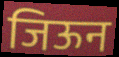
जिऊन